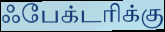
ஃபேக்டரிக்கு